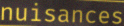
nuisances